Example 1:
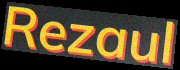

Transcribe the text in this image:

Rezaul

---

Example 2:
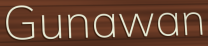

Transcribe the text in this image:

Gunawan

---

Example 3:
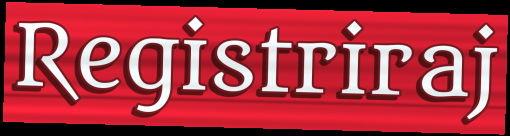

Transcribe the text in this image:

Registriraj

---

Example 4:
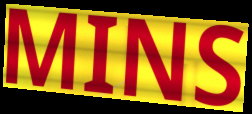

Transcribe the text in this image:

MINS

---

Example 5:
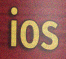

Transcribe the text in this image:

ios